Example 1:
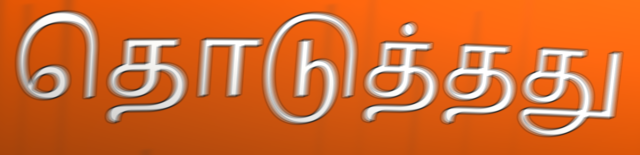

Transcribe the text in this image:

தொடுத்தது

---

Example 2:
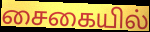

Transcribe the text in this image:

சைகையில்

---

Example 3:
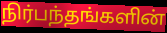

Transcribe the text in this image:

நிர்பந்தங்களின்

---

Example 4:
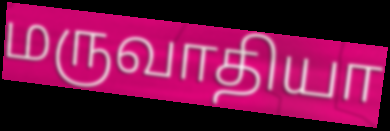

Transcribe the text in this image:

மருவாதியா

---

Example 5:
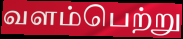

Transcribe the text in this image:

வளம்பெற்று